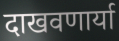
दाखवणार्या